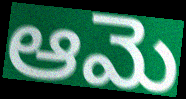
ఆమె